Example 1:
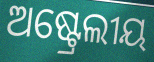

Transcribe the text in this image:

ଅଷ୍ଟ୍ରେଲୀୟ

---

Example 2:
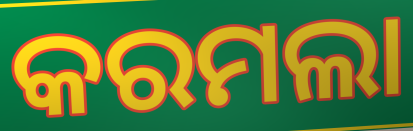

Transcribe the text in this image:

କରମଲା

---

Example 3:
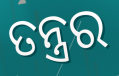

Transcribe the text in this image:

ତନ୍ତ୍ରର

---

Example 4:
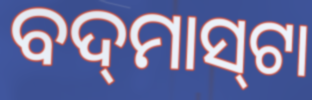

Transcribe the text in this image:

ବଦ୍‌ମାସ୍‌ଟା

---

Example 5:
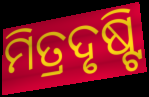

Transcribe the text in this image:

ମିତ୍ରଦୃଷ୍ଟି